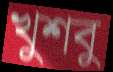
খুশবু